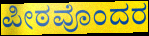
ಪೀಠವೊಂದರ